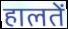
हालतें